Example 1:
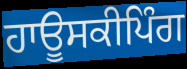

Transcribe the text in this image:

ਹਾਊਸਕੀਪਿੰਗ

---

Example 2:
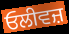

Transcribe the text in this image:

ਓਲੀਵਜ਼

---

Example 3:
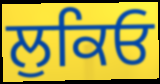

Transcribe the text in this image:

ਲੁਕਿਓ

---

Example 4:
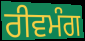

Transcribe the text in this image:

ਰੀਵਮੰਗ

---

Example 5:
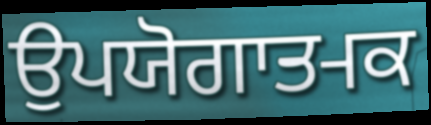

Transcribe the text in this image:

ਉਪਯੋਗਾਤ੍ਮਕ